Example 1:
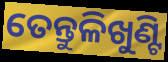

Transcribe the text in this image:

ତେନ୍ତୁଳିଖୁଣ୍ଟି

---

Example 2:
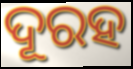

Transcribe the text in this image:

ଦୂରହ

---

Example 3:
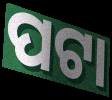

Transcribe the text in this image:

ପଟା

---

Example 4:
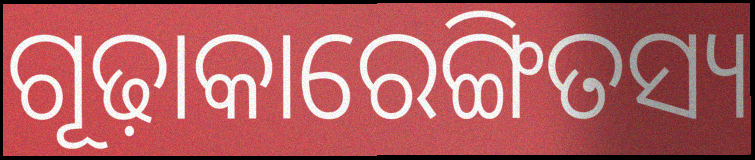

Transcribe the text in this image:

ଗୂଢ଼ାକାରେଙ୍ଗିତସ୍ୟ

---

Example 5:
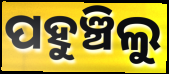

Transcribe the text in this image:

ପହୁଞ୍ଚିଲୁ